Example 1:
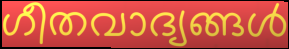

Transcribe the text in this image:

ഗീതവാദ്യങ്ങൾ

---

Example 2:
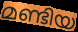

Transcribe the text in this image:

മണ്ടിയ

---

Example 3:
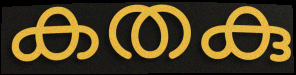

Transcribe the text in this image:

കതകു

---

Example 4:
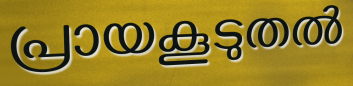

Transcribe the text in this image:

പ്രായകൂടുതൽ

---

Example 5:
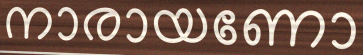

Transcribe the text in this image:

നാരായണോ